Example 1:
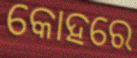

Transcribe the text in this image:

କୋହରେ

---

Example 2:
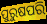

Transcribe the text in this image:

ପୁରୁଷପରି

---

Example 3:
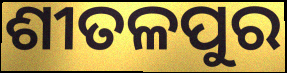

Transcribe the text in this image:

ଶୀତଳପୁର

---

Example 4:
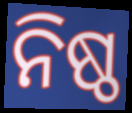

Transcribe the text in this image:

ନିଷ୍ଠ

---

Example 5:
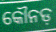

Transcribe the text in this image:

କୌନଡ଼